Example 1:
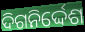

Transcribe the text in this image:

ଦିଗନିର୍ଦ୍ଦେଶ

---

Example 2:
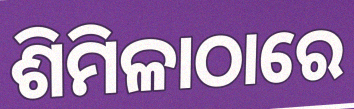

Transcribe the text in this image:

ଶିମିଳାଠାରେ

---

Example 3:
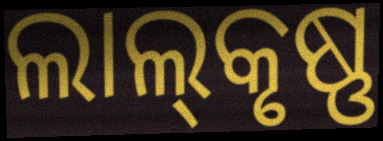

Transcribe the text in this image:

ଲାଲ୍‌କୃଷ୍ଣ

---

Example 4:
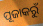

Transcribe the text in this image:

ପୂଜାକରୁଁ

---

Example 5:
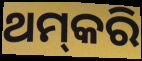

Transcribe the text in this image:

ଥମ୍‌କରି